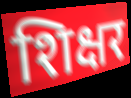
शिक्षर